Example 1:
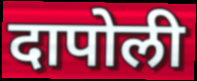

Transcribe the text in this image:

दापोली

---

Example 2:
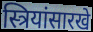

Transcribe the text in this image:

स्त्रियांसारखे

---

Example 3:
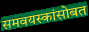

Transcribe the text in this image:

समवयस्कांसोबत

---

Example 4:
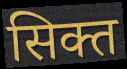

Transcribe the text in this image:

सिक्त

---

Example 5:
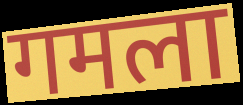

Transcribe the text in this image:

गमला